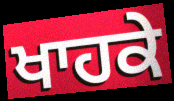
ਖਾਹਕੇ